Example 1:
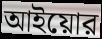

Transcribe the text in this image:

আইয়োর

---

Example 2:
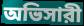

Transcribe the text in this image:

অভিসারী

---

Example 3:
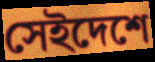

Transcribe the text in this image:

সেইদেশে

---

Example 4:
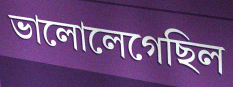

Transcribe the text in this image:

ভালোলেগেছিল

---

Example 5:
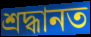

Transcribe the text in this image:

শ্রদ্ধানত